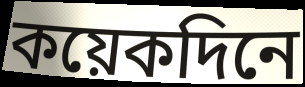
কয়েকদিনে